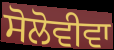
ਸੋਲੋਵੀਵਾ